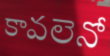
కావలెనో